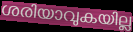
ശരിയാവുകയില്ല